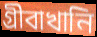
গ্রীবাখানি